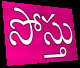
సోస్తు